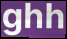
ghh